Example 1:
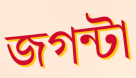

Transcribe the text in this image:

জগন্টা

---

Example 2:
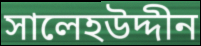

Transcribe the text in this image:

সালেহউদ্দীন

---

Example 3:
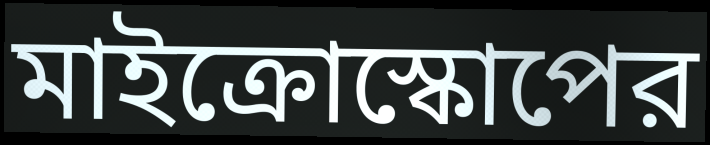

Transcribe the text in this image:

মাইক্রোস্কোপের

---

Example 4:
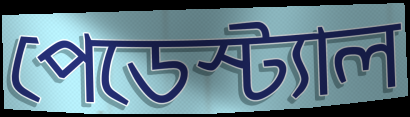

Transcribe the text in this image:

পেডেস্ট্যাল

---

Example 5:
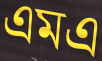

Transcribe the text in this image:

এমএ